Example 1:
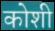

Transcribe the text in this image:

कोशी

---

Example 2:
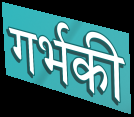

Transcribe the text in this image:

गर्भकी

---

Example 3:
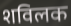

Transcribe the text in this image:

शविलक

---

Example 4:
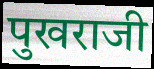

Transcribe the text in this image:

पुखराजी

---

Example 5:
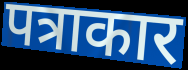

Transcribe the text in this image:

पत्राकार